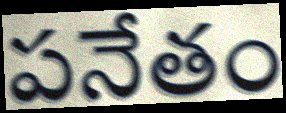
పనేతం